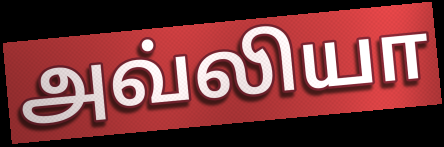
அவ்லியா